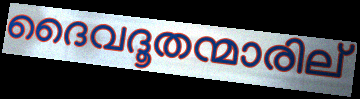
ദൈവദൂതന്മാരില്